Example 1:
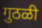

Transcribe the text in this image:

गुठळी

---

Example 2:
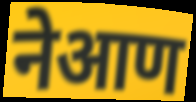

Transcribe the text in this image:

नेआण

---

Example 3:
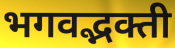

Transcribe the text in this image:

भगवद्भक्ती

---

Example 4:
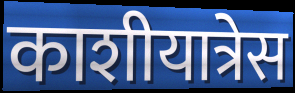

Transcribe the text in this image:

काशीयात्रेस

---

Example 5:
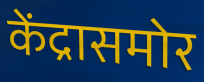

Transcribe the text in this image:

केंद्रासमोर